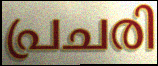
പ്രചരി